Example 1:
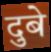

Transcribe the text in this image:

दुबे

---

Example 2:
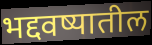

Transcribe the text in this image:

भद्दवष्यातील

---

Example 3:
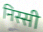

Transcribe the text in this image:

निस्सी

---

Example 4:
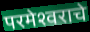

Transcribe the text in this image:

परमेश्वराचे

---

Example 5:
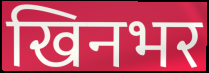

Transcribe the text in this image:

खिनभर